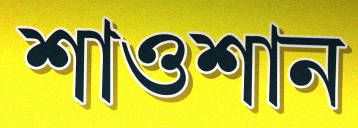
শাওশান